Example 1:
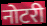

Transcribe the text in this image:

नोटरी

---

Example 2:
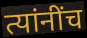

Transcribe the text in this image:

त्यांनींच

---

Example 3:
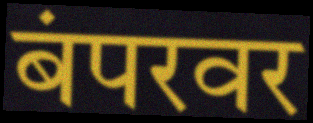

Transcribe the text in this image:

बंपरवर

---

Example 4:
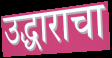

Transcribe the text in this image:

उद्धाराचा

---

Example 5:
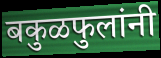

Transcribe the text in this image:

बकुळफुलांनी